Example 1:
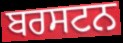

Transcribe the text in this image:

ਬਰਸਟਨ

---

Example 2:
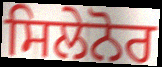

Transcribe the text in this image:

ਸਿਲੇਨੋਰ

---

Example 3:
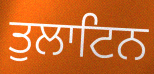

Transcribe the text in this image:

ਤੁਲਾਟਿਨ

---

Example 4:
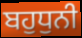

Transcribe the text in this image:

ਬਹੁਧੁਨੀ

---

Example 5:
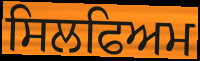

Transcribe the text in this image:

ਸਿਲਫਿਅਮ